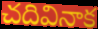
చదివినాక